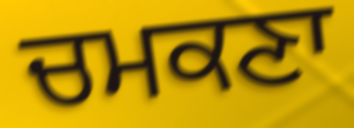
ਚਮਕਣਾ